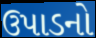
ઉપાડનો